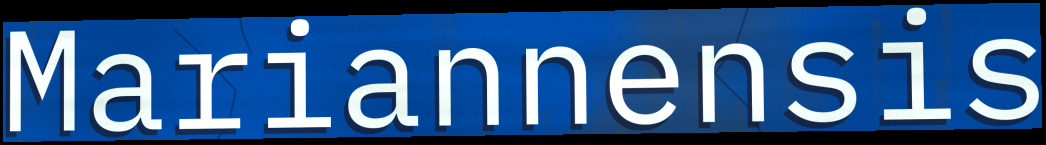
Mariannensis